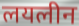
लयलीन